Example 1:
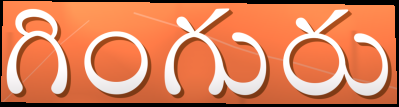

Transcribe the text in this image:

గింగురు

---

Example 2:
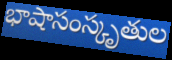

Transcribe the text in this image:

భాషాసంస్కృతుల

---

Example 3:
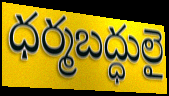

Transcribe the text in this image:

ధర్మబద్ధులై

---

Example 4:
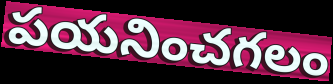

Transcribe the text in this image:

పయనించగలం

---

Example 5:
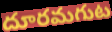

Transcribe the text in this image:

దూరమగుట